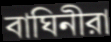
বাঘিনীরা